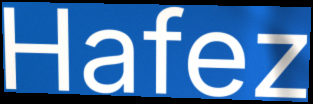
Hafez